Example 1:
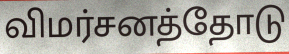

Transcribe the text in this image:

விமர்சனத்தோடு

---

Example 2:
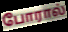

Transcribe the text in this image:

போரால்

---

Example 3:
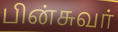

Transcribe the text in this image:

பின்சுவர்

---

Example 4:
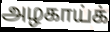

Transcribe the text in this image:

அழகாய்க்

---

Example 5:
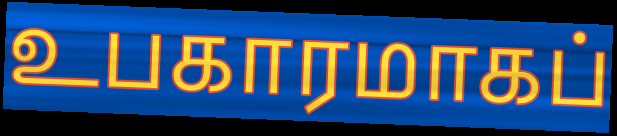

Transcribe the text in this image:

உபகாரமாகப்